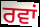
ਰਵਾਂ